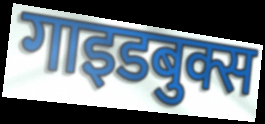
गाइडबुक्स